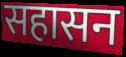
सहासन